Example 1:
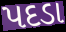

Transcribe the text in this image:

પદડા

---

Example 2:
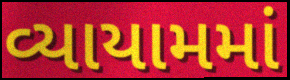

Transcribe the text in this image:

વ્યાયામમાં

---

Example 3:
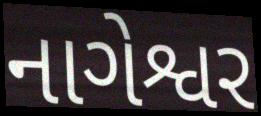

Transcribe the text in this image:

નાગેશ્વર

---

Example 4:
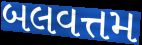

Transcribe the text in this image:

બલવત્તમ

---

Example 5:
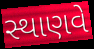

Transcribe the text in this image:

સ્થાણવે